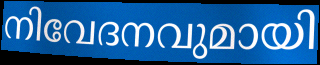
നിവേദനവുമായി